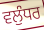
ਵਲੁੰਧਰ